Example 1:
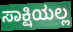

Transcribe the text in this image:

ಸಾಕ್ಷಿಯಲ್ಲ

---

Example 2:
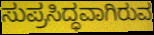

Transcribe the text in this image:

ಸುಪ್ರಸಿದ್ಧವಾಗಿರುವ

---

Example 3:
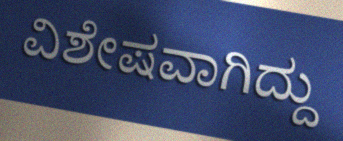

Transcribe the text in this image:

ವಿಶೇಷವಾಗಿದ್ದು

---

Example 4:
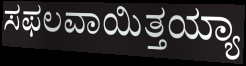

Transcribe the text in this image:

ಸಫಲವಾಯಿತ್ತಯ್ಯಾ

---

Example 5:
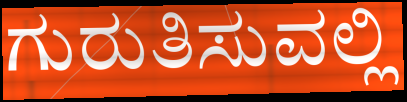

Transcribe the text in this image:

ಗುರುತಿಸುವಲ್ಲಿ